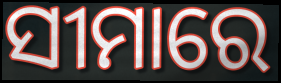
ସୀମାରେ